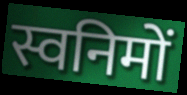
स्वनिमों